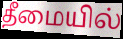
தீமையில்